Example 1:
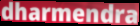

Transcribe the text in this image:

dharmendra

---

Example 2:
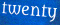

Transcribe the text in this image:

twenty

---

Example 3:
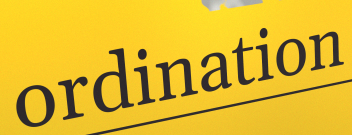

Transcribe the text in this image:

ordination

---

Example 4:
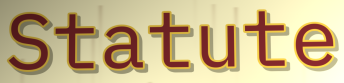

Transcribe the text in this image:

Statute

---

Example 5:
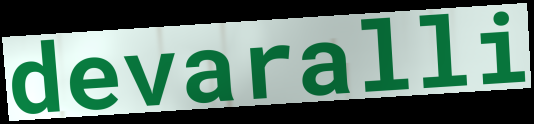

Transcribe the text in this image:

devaralli